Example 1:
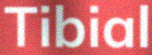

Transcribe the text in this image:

Tibial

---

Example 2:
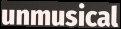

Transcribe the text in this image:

unmusical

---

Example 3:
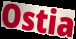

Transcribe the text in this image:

Ostia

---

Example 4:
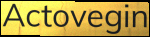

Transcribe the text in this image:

Actovegin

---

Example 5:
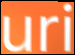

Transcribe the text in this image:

uri